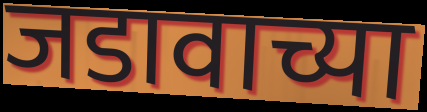
जडावाच्या